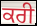
ਕਰੀ